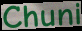
Chuni